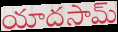
యాదసామ్